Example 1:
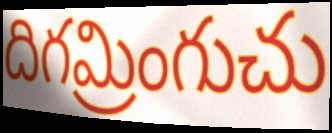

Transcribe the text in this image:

దిగమ్రింగుచు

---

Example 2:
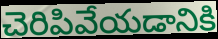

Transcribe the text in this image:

చెరిపివేయడానికి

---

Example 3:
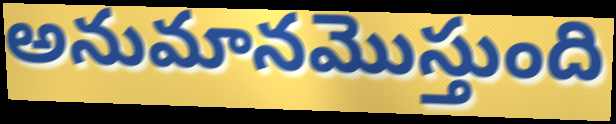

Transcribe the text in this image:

అనుమానమొస్తుంది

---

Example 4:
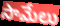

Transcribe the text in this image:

సామేలు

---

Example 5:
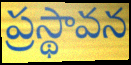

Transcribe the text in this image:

ప్రస్థావన